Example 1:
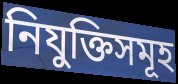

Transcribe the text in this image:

নিযুক্তিসমূহ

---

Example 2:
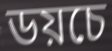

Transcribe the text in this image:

ডয়চে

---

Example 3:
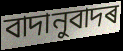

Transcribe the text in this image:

বাদানুবাদৰ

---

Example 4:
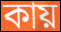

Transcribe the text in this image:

কায়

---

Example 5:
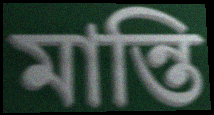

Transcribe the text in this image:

মান্তি